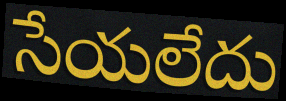
సేయలేదు